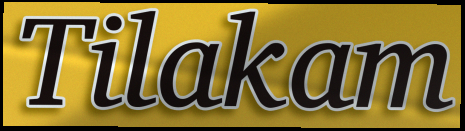
Tilakam